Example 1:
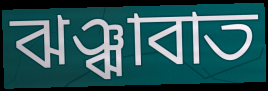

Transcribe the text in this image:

ঝঞ্ঝাবাত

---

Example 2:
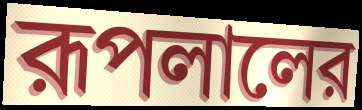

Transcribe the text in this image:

রূপলালের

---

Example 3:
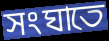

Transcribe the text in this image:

সংঘাতে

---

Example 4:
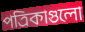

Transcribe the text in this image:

পত্রিকাগুলো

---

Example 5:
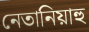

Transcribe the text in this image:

নেতানিয়াহু